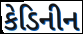
કેડિનીન